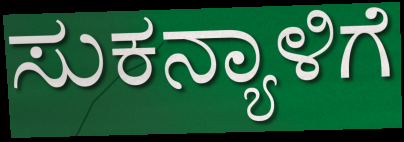
ಸುಕನ್ಯಾಳಿಗೆ